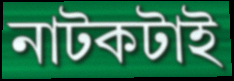
নাটকটাই